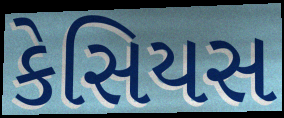
કેસિયસ